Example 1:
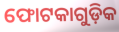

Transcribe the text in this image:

ଫୋଟକାଗୁଡ଼ିକ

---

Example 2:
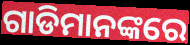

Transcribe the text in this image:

ଗାଡିମାନଙ୍କରେ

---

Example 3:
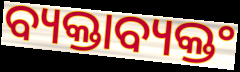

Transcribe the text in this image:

ବ୍ୟକ୍ତାବ୍ୟକ୍ତଂ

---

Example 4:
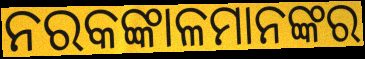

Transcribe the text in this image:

ନରକଙ୍କାଳମାନଙ୍କର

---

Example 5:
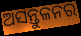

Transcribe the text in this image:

ଅସନ୍ତୁଳନର